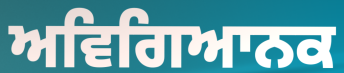
ਅਵਿਗਿਆਨਕ